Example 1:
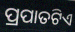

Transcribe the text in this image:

ପ୍ରପାତଟିଏ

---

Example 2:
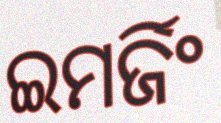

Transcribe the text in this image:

ଇମର୍ଜିଂ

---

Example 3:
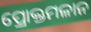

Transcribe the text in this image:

ପ୍ରୋକ୍ତମଳାନ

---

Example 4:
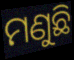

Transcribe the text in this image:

ମଣୁଛି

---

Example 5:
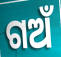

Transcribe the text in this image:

ଗଅଁ